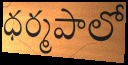
ధర్మపాలో